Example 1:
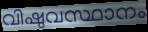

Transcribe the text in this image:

വിഷുവസ്ഥാനം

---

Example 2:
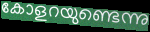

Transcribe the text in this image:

കോളറയുണ്ടെന്നു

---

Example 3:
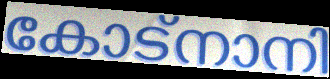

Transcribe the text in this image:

കോട്നാനി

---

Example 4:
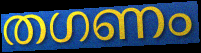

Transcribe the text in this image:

തഗണം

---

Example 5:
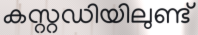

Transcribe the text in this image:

കസ്റ്റഡിയിലുണ്ട്